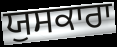
ਯੁਸਕਾਰਾ